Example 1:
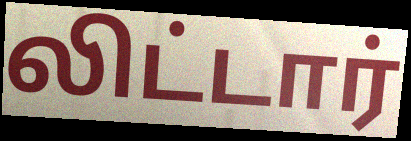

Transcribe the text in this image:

லிட்டார்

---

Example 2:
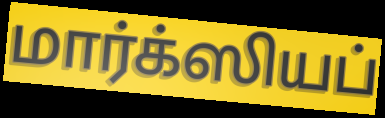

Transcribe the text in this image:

மார்க்ஸியப்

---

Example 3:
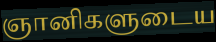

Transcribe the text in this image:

ஞானிகளுடைய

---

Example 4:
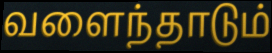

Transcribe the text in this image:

வளைந்தாடும்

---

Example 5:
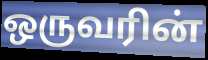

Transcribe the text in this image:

ஒருவரின்